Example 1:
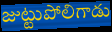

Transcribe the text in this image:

జుట్టుపోలిగాడు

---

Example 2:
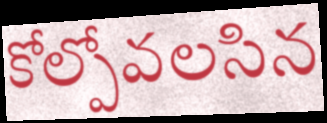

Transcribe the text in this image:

కోల్పోవలసిన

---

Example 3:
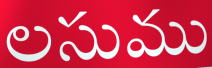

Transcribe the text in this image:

లసుము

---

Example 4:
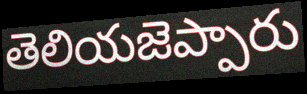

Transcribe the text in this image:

తెలియజెప్పారు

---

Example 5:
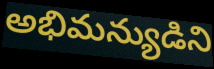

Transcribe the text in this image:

అభిమన్యుడిని